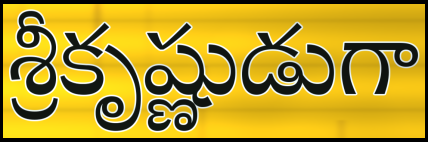
శ్రీకృష్ణుడుగా